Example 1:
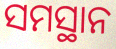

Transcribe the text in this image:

ସମସ୍ଥାନ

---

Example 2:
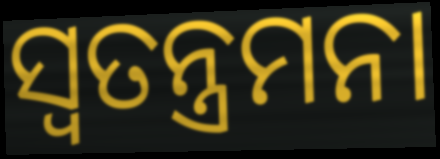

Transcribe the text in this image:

ସ୍ୱତନ୍ତ୍ରମନା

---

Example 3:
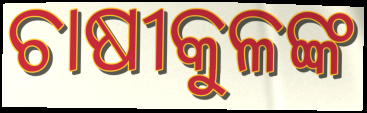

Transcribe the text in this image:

ଚାଷୀକୁଳଙ୍କ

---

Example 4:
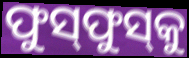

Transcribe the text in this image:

ଫୁସ୍‌ଫୁସ୍‌କୁ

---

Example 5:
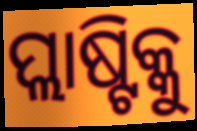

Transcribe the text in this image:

ପ୍ଲାଷ୍ଟିକ୍କୁ